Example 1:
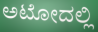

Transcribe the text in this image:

ಅಟೋದಲ್ಲಿ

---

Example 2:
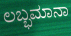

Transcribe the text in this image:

ಲಬ್ಭಮಾನಾ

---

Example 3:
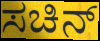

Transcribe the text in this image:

ಸಚಿನ್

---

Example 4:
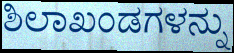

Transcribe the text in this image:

ಶಿಲಾಖಂಡಗಳನ್ನು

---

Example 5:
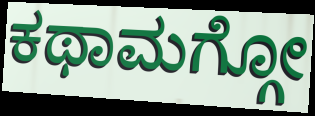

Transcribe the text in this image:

ಕಥಾಮಗ್ಗೋ